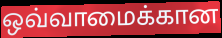
ஒவ்வாமைக்கான